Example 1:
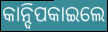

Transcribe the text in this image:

କାନ୍ଦିପକାଇଲେ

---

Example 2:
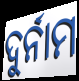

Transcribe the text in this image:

ଦୁର୍ନାମ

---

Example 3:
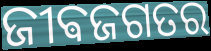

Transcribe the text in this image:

ଜୀଵଜଗତର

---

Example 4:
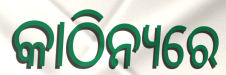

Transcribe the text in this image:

କାଠିନ୍ୟରେ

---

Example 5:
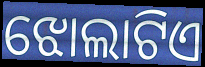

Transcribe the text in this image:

ଝୋଲାଟିଏ